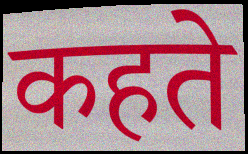
कहते